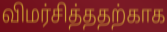
விமர்சித்ததற்காக